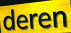
deren